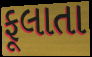
ફૂલાતા